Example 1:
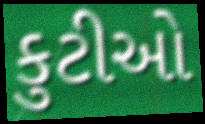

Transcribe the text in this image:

કુટીઓ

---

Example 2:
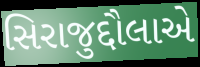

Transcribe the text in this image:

સિરાજુદ્દૌલાએ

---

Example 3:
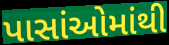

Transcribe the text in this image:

પાસાંઓમાંથી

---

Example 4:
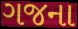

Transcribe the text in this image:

ગજના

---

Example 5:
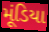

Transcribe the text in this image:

મૂંડિયા